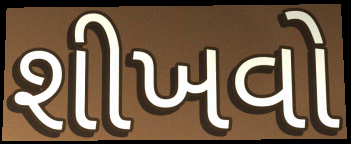
શીખવો